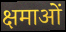
क्षमाओं